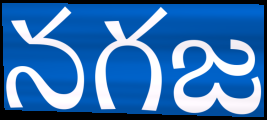
నగజ